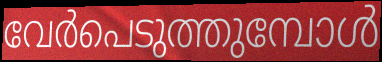
വേർപെടുത്തുമ്പോൾ